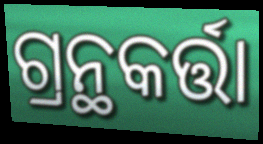
ଗ୍ରନ୍ଥକର୍ତ୍ତା